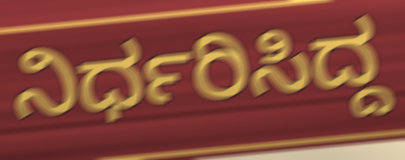
ನಿರ್ಧರಿಸಿದ್ದ